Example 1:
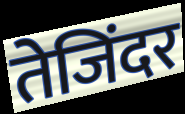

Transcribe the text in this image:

तेजिंदर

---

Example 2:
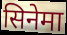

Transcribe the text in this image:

सिनेमा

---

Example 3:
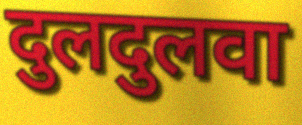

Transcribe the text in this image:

दुलदुलवा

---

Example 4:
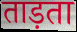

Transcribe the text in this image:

ताड़ता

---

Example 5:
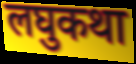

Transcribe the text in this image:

लघुकथा